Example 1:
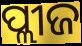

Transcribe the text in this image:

ପ୍ଲୀଜ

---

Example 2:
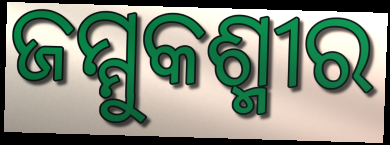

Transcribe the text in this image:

ଜମ୍ମୁକଶ୍ମୀର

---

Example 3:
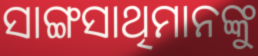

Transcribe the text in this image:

ସାଙ୍ଗସାଥିମାନଙ୍କୁ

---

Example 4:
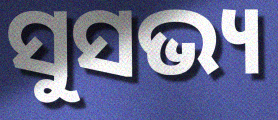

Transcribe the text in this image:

ସୁସଭ୍ୟ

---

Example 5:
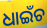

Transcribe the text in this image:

ଧାଇଁଚ